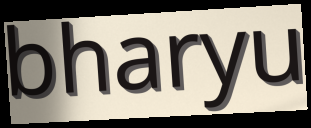
bharyu